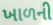
ખાળની